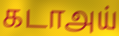
கடாஅய்